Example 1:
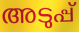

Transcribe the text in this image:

അടുപ്പ്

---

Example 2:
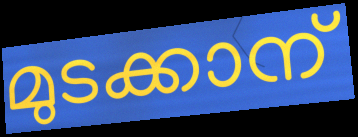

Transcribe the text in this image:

മുടക്കാന്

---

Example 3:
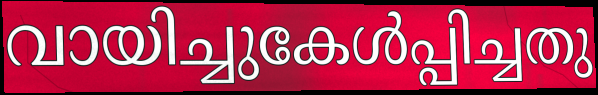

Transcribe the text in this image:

വായിച്ചുകേൾപ്പിച്ചതു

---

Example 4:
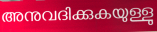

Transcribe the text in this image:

അനുവദിക്കുകയുള്ളു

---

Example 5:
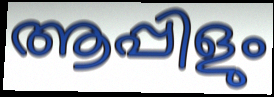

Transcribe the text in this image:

ആപ്പിളും